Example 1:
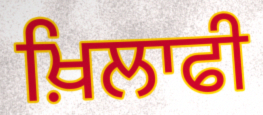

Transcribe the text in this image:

ਖ਼ਿਲਾਫੀ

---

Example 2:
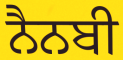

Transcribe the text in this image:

ਨੈਨਬੀ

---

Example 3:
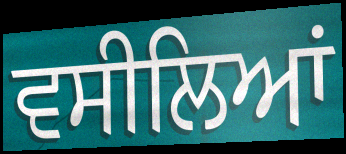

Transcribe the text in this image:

ਵਸੀਲਿਆਂ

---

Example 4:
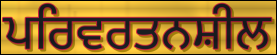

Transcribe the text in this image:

ਪਰਿਵਰਤਨਸ਼ੀਲ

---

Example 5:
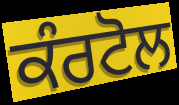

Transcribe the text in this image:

ਕੰਰਟੋਲ